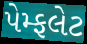
પેમ્ફલેટ